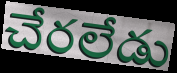
చేరలేడు